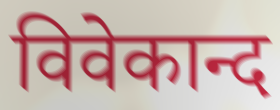
विवेकान्द